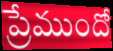
ప్రేముందో